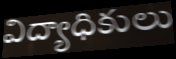
విద్యాధికులు